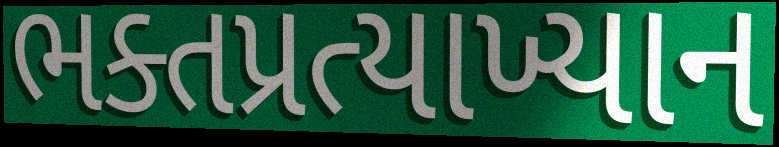
ભક્તપ્રત્યાખ્યાન